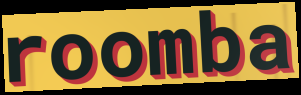
roomba